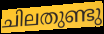
ചിലതുണ്ടു